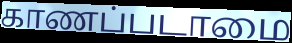
காணப்படாமை